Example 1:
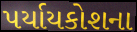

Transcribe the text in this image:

પર્યાયકોશના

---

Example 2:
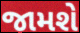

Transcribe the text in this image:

જામશે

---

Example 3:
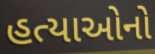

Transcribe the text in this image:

હત્યાઓનો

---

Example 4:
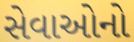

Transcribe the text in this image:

સેવાઓનો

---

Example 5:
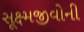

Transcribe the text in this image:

સૂક્ષ્મજીવોની